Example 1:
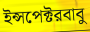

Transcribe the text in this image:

ইন্সপেক্টরবাবু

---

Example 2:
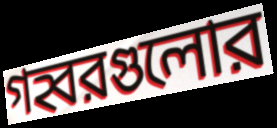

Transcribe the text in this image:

গহ্বরগুলোর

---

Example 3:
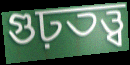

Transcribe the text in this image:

গুঢ়তত্ত্ব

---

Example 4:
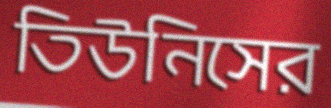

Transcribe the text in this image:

তিউনিসের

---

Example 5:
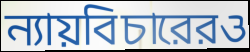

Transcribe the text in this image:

ন্যায়বিচারেরও